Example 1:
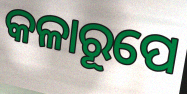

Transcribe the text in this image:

କଳାରୂପେ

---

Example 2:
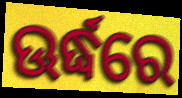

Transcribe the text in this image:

ଊର୍ଦ୍ଧରେ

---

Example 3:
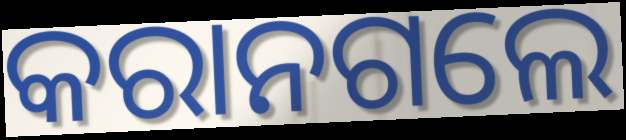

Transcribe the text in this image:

କରାନଗଲେ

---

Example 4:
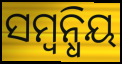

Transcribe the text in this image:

ସମ୍ଵନ୍ଧିୟ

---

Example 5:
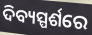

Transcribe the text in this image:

ଦିବ୍ୟସ୍ପର୍ଶରେ